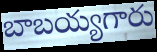
బాబయ్యగారు